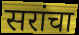
सरांचा